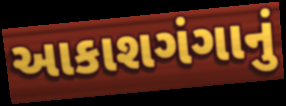
આકાશગંગાનું